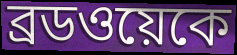
ব্রডওয়েকে